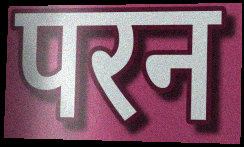
परन